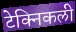
टेक्निकली